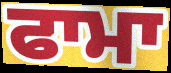
ਫਾਮਾ